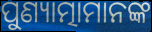
ପୁଣ୍ୟାତ୍ମାମାନଙ୍କ